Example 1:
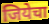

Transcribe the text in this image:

जियेचा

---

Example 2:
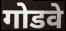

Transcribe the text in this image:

गोडवे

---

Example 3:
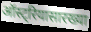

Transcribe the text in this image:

ऑस्ट्रियासारख्या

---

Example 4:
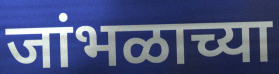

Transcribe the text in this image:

जांभळाच्या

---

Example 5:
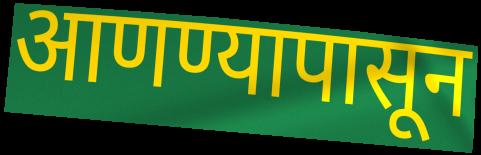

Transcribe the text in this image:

आणण्यापासून